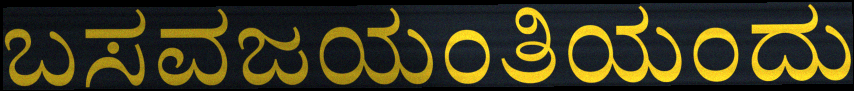
ಬಸವಜಯಂತಿಯಂದು